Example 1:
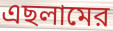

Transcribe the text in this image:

এছলামের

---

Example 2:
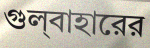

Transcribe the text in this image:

গুল্‌বাহারের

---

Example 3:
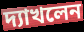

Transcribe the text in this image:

দ্যাখলেন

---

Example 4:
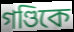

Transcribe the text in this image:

গণ্ডিকে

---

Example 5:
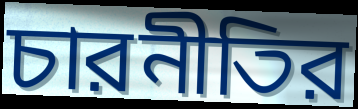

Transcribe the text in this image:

চারনীতির